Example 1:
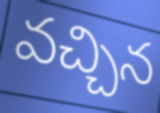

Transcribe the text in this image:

వచ్చిన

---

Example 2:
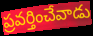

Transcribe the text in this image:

ప్రవర్తించేవాడు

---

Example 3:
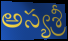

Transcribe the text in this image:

అస్యశ్రీ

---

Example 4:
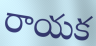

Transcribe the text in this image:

రాయక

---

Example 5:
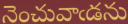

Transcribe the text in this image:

నెంచువాఁడను